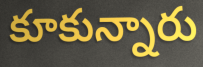
కూకున్నారు